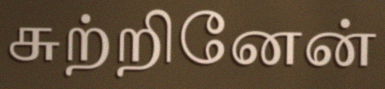
சுற்றினேன்